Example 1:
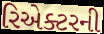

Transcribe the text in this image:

રિએક્ટરની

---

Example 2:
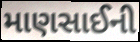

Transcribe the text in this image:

માણસાઈની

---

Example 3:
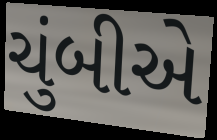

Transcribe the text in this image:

ચુંબીએ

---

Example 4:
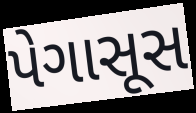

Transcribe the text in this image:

પેગાસૂસ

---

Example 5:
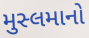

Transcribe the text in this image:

મુસ્લમાનો